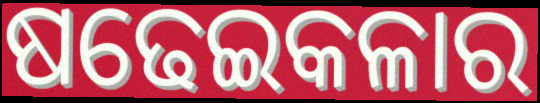
ଷଢେଇକଳାର